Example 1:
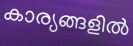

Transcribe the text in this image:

കാര്യങ്ങളിൽ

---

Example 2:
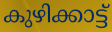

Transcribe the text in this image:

കുഴിക്കാട്ട്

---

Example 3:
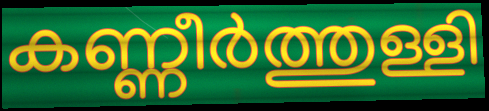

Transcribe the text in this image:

കണ്ണീർത്തുള്ളി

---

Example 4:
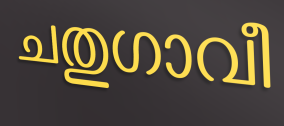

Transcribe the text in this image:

ചതുഗാവീ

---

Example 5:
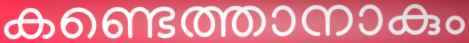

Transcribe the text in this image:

കണ്ടെത്താനാകും